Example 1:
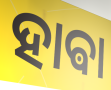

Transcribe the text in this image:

ହାଵା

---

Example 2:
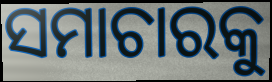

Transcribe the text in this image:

ସମାଚାରକୁ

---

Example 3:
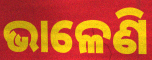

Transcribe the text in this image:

ଭାଳେଣି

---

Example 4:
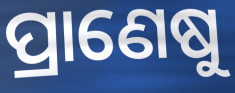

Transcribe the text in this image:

ପ୍ରାଣେଷୁ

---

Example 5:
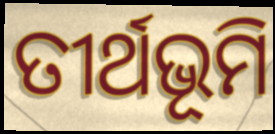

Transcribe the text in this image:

ତୀର୍ଥଭୂମି